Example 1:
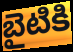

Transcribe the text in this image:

బైటికి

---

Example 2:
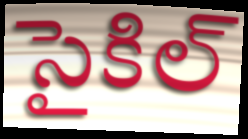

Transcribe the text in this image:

సైకిల్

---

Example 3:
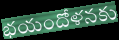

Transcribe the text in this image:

భయందోళనకు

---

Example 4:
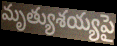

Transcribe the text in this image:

మృత్యుశయ్యపై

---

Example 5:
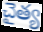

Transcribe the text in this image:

చైత్య